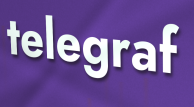
telegraf